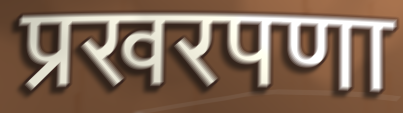
प्रखरपणा